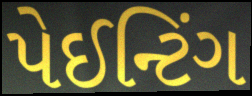
પેઈન્ટિંગ